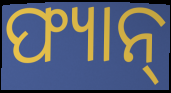
ଫ୍ୟାନ୍